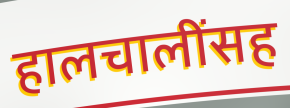
हालचालींसह